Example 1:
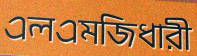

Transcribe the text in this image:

এলএমজিধারী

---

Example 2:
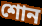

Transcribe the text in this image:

শোন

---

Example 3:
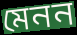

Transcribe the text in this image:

মেনন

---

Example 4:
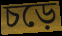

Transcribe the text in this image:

চড়ে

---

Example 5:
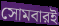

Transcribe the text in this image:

সোমবারই